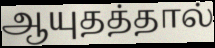
ஆயுதத்தால்